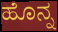
ಹೊನ್ನ